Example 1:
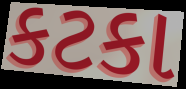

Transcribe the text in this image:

કટકા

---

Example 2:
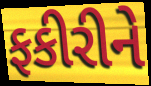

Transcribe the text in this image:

ફકીરીને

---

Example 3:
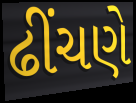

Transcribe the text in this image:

ઢીંચણે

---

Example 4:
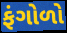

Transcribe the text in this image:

ફંગોળો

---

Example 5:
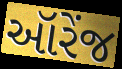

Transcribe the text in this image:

ઑરેંજ